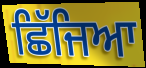
ਛਿੱਜਿਆ